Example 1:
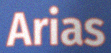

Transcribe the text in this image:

Arias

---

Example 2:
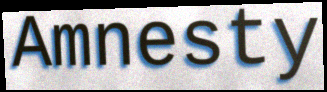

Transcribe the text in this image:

Amnesty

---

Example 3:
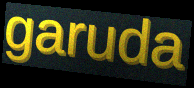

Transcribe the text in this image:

garuda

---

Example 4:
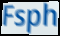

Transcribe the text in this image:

Fsph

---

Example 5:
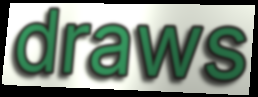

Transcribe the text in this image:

draws